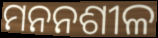
ମନନଶୀଳ